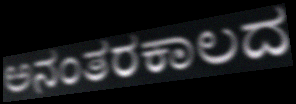
ಅನಂತರಕಾಲದ